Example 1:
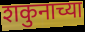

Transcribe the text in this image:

शकुनाच्या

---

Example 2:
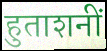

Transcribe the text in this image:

हुताशनीं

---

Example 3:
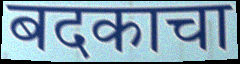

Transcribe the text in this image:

बदकाचा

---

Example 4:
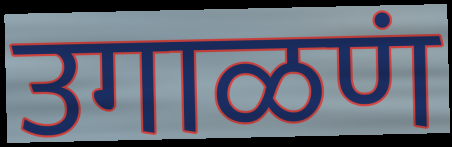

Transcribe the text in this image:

उगाळणं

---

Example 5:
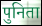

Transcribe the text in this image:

पुनिता